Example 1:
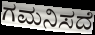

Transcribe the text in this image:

ಗಮನಿಸದೆ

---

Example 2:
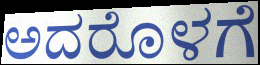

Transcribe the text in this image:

ಅದರೊಳಗೆ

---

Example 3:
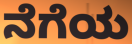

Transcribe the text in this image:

ನೆಗೆಯ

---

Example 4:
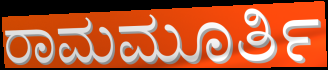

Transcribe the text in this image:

ರಾಮಮೂರ್ತಿ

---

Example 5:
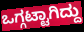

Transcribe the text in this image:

ಒಗ್ಗಟ್ಟಾಗಿದ್ದು